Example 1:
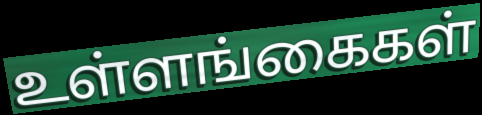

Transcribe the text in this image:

உள்ளங்கைகள்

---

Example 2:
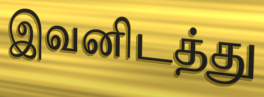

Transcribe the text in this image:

இவனிடத்து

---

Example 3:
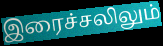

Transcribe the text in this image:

இரைச்சலிலும்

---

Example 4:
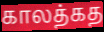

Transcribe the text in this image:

காலத்கத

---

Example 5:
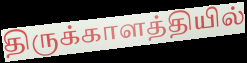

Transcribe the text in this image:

திருக்காளத்தியில்